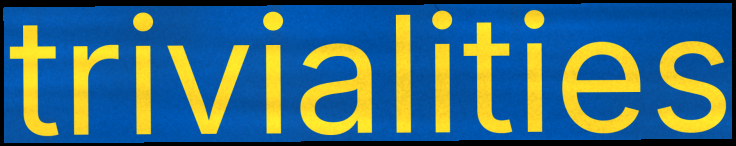
trivialities